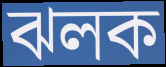
ঝলক